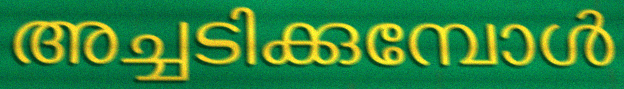
അച്ചടിക്കുമ്പോൾ